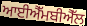
ਆਈਐੱਮਬੀਐੱਲ